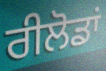
ਰੀਲੋਡਾਂ